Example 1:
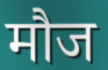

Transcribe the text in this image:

मौज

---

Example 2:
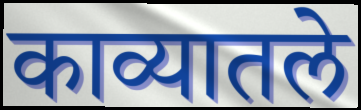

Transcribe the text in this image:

काव्यातले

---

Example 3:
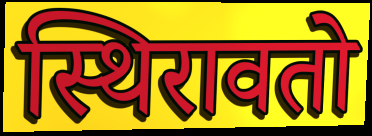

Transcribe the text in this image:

स्थिरावतो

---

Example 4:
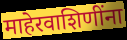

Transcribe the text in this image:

माहेरवाशिणींना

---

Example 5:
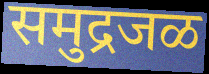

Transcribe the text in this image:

समुद्रजळ